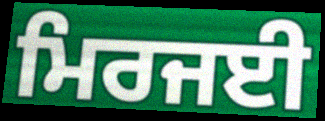
ਮਿਰਜਈ